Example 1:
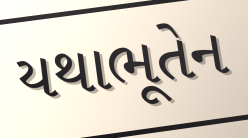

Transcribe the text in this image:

યથાભૂતેન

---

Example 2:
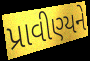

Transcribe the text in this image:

પ્રાવીણ્યને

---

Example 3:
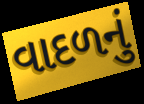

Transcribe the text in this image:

વાદળનું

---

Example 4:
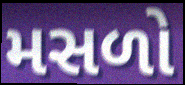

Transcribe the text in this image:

મસળો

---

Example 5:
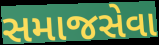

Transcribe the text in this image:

સમાજસેવા